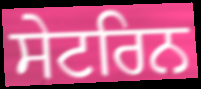
ਸੇਟਰਿਨ